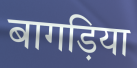
बागड़िया